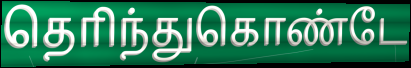
தெரிந்துகொண்டே